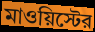
মাওয়িস্টের